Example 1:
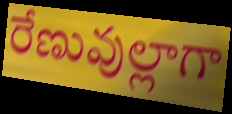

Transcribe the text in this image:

రేణువుల్లాగా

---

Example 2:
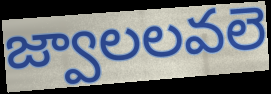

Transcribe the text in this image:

జ్వాలలవలె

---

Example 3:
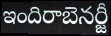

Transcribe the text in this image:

ఇందిరాబెనర్జీ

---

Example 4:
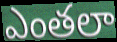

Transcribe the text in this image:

ఎంతలా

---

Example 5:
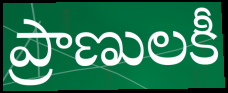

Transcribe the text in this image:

ప్రాణులకీ